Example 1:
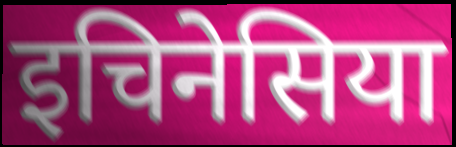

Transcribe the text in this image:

इचिनेसिया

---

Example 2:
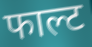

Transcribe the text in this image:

फाल्ट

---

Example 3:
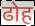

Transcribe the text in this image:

ढोह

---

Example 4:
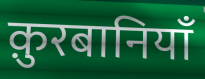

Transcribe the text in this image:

क़ुरबानियाँ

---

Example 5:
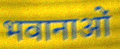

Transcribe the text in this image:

भवानाओं